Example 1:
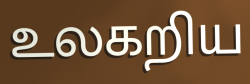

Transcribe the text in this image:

உலகறிய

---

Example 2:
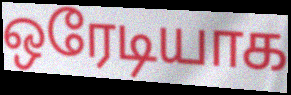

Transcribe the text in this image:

ஒரேடியாக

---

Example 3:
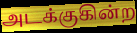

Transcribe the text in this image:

அடக்குகின்ற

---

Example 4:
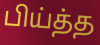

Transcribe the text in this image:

பிய்த்த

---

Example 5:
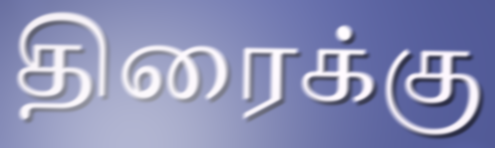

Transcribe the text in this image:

திரைக்கு